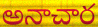
అనాచార